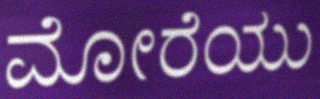
ಮೋರೆಯು